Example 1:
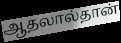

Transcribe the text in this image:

ஆதலால்தான்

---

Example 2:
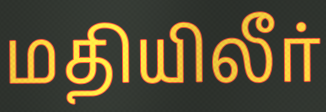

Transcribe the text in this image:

மதியிலீர்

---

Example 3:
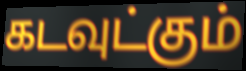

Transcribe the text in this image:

கடவுட்கும்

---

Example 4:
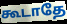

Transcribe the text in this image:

கூடாதே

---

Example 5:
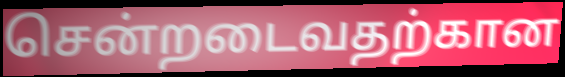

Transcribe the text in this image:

சென்றடைவதற்கான